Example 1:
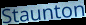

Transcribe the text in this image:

Staunton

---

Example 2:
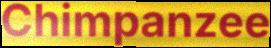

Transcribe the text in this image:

Chimpanzee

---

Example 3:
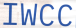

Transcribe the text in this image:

IWCC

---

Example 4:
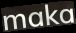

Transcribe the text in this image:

maka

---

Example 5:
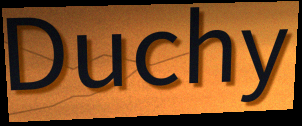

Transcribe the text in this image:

Duchy